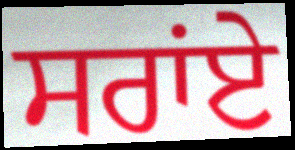
ਸਰਾਂਏ